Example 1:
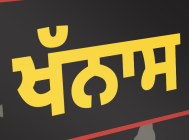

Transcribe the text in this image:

ਖੱਨਾਸ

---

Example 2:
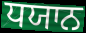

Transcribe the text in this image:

ਧਯਾਨ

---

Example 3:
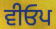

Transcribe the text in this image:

ਵੀਓਪ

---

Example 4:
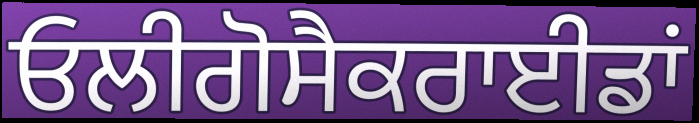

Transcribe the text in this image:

ਓਲੀਗੋਸੈਕਰਾਈਡਾਂ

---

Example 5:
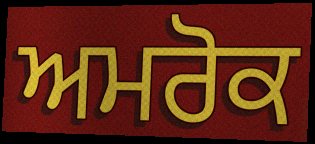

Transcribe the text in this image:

ਅਮਰੋਕ